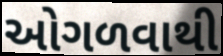
ઓગળવાથી